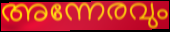
അന്നേരവും